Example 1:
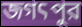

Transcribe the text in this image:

জগৎপুর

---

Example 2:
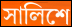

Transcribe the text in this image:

সালিশে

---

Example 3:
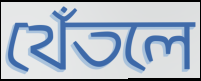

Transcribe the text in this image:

থেঁতলে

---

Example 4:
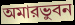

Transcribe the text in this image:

অমারভুবন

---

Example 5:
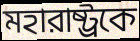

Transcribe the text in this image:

মহারাষ্ট্রকে